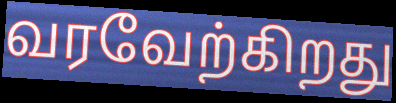
வரவேற்கிறது